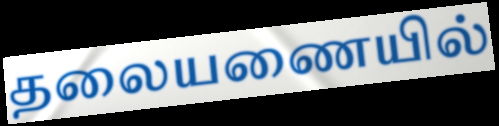
தலையணையில்